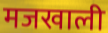
मजखाली